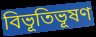
বিভূতিভূষণ